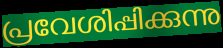
പ്രവേശിപ്പിക്കുന്നു